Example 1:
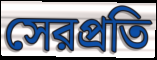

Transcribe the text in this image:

সেরপ্রতি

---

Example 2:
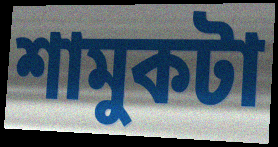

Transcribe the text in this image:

শামুকটা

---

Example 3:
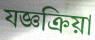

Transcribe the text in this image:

যজ্ঞক্রিয়া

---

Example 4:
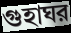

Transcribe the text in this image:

গুহাঘর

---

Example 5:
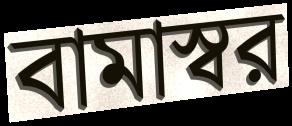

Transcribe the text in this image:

বামাস্বর